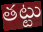
తట్టు